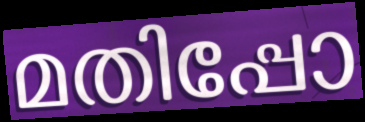
മതിപ്പോ